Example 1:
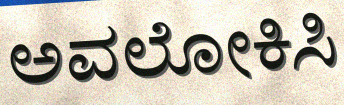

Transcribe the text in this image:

ಅವಲೋಕಿಸಿ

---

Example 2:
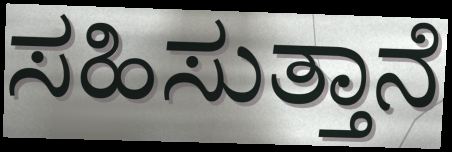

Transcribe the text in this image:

ಸಹಿಸುತ್ತಾನೆ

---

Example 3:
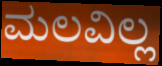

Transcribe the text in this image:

ಮಲವಿಲ್ಲ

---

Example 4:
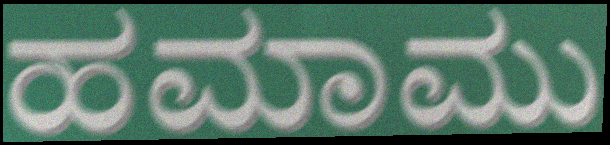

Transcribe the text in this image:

ಹಮಾಮು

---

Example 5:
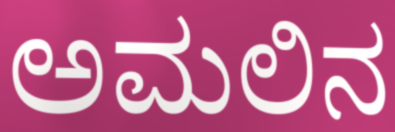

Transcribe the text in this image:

ಅಮಲಿನ